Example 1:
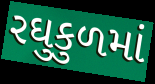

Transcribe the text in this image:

રઘુકુળમાં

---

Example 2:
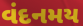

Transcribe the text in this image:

વંદનમય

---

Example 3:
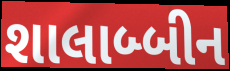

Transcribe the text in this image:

શાલાબ્બીન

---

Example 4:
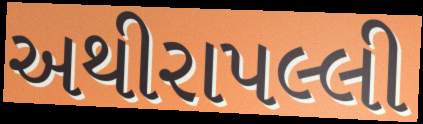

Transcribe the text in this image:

અથીરાપલ્લી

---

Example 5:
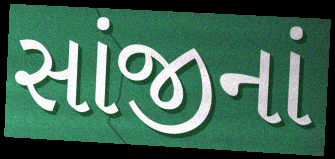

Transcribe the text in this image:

સાંજીનાં